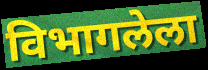
विभागलेला